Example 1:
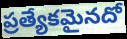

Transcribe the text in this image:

ప్రత్యేకమైనదో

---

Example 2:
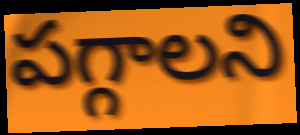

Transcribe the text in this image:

పగ్గాలని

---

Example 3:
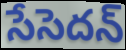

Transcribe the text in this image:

సేసెదన్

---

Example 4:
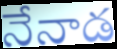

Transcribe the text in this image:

నేనాడ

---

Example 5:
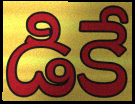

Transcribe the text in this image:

డికే